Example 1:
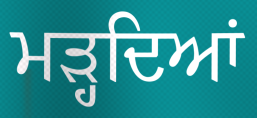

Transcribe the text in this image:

ਮੜ੍ਹਦਿਆਂ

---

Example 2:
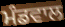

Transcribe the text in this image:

ਮੰਡਵਾਲ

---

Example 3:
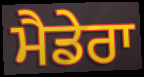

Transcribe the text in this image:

ਮੈਡੇਰਾ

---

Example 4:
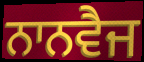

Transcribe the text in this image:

ਨਾਨਵੈਜ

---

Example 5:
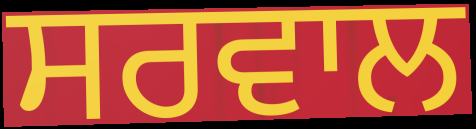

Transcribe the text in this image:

ਸਰਵਾਲ